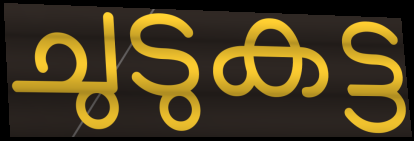
ചുടുകട്ട